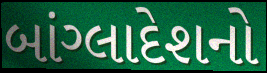
બાંગ્લાદેશનો